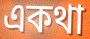
একথা